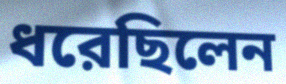
ধরেছিলেন